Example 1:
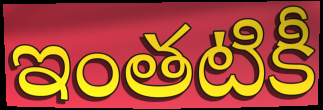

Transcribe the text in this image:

ఇంతటికీ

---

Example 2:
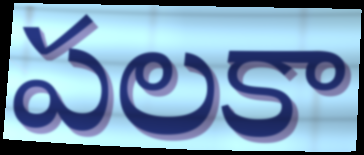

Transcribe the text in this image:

పలకా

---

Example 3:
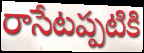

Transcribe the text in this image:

రాసేటప్పటికి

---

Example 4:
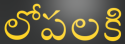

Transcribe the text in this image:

లోపలకి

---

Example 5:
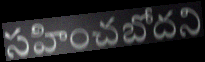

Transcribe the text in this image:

సహించబోదని